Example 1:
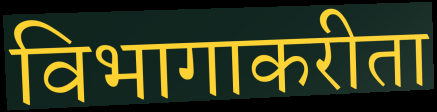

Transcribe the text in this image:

विभागाकरीता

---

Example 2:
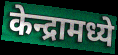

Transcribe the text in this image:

केन्द्रामध्ये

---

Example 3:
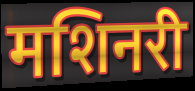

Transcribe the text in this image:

मशिनरी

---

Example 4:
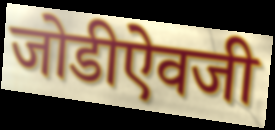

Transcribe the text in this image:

जोडीऐवजी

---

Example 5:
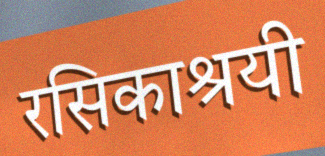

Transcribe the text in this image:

रसिकाश्रयी